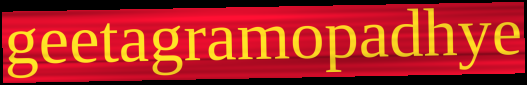
geetagramopadhye